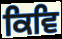
ਕਿਵਿ